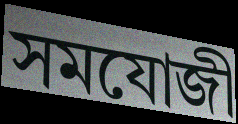
সমযোজী